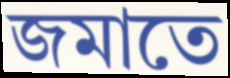
জমাতে